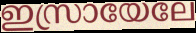
ഇസ്രായേലേ